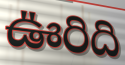
ఊరిది